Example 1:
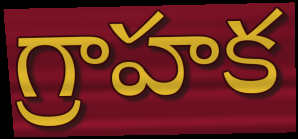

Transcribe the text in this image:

గ్రాహక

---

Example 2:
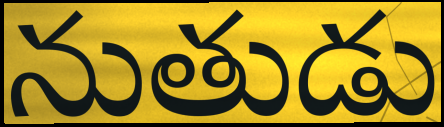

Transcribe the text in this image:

నుతుడు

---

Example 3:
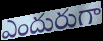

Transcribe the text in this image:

ఎందురుగా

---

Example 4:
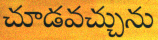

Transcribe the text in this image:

చూడవచ్చును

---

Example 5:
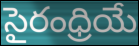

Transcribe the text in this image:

సైరంధ్రియే